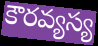
కౌరవ్యస్య